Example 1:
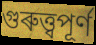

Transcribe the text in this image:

গুৰুত্ত্বপূৰ্ণ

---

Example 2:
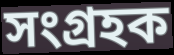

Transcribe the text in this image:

সংগ্ৰহক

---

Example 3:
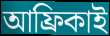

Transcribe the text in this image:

আফ্ৰিকাই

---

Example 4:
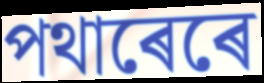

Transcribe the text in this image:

পথাৰেৰে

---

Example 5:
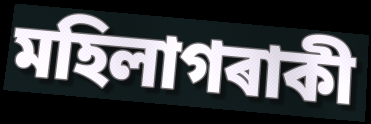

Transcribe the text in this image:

মহিলাগৰাকী